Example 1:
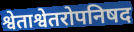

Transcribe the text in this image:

श्वेताश्वेतरोपनिषद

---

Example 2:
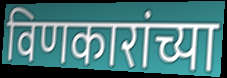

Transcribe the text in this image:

विणकारांच्या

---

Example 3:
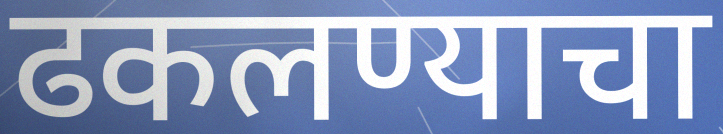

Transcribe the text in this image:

ढकलण्याचा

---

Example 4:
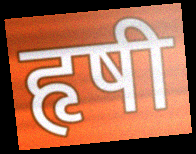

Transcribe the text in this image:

हृषी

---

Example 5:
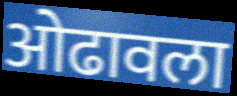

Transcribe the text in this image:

ओढावला